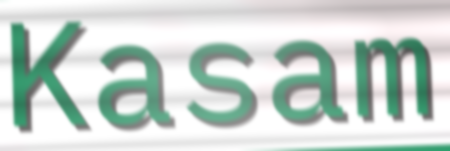
Kasam